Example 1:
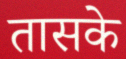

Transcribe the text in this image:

तासके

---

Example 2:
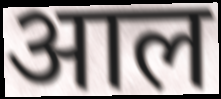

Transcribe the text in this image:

आल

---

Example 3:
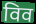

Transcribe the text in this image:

विव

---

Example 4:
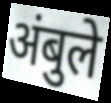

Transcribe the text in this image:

अंबुले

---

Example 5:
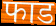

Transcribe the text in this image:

फाड